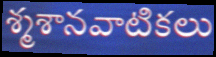
శ్మశానవాటికలు